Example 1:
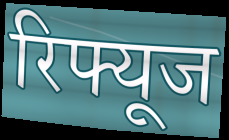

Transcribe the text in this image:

रिफ्यूज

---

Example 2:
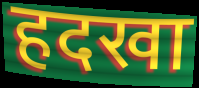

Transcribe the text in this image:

हदखा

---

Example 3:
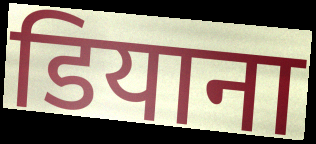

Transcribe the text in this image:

डियाना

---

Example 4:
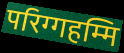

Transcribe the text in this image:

परिग्गहम्मि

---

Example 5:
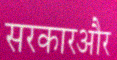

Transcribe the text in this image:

सरकारऔर